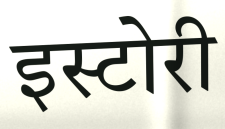
इस्टोरी